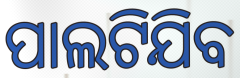
ପାଲଟିଯିବ